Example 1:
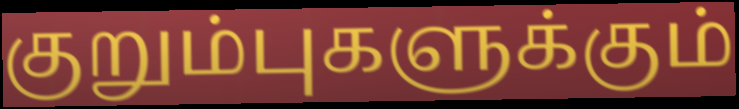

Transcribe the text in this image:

குறும்புகளுக்கும்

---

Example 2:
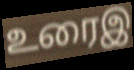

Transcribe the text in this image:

உரைஇ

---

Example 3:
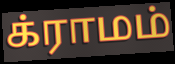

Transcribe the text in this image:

க்ராமம்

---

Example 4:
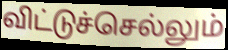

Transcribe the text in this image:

விட்டுச்செல்லும்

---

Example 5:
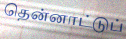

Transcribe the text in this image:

தென்னாட்டுப்